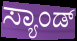
ಸ್ಯಾಂಡ್